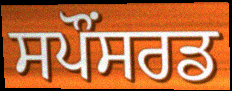
ਸਪੌਂਸਰਡ